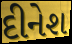
દીનેશ